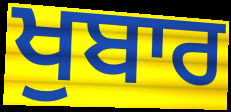
ਖੁਬਾਰ